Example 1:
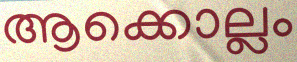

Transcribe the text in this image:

ആക്കൊല്ലം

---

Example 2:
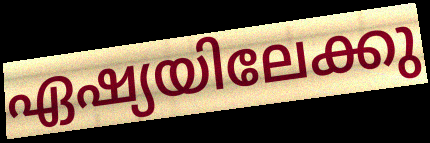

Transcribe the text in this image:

ഏഷ്യയിലേക്കു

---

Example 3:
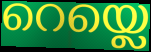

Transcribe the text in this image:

റെയ്ലെ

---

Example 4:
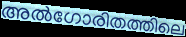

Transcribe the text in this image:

അൽഗോരിതത്തിലെ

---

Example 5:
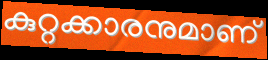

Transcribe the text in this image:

കുറ്റക്കാരനുമാണ്